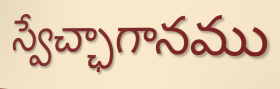
స్వేచ్ఛాగానము